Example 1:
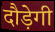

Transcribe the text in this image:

दौड़ेगी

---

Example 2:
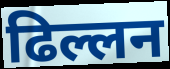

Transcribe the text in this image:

ढिल्लन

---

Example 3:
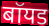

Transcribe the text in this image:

बॉयड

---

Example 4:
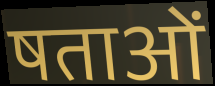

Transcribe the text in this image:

षताओं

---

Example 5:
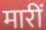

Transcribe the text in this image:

मारीं